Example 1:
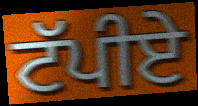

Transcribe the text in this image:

ਟੱਪੀਏ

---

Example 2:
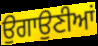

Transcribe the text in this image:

ਉਗਾਉਣੀਆਂ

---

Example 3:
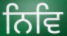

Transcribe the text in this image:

ਨਿਵਿ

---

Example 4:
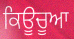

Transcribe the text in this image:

ਕਿਊਚੂਆ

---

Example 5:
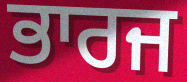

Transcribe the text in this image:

ਭਾਰਜ